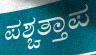
ಪಶ್ಚತ್ತಾಪ